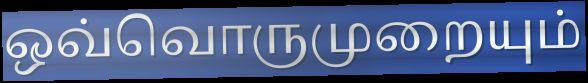
ஒவ்வொருமுறையும்